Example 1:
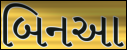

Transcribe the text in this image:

બિનઆ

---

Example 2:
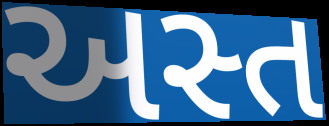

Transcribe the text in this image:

અસ્ત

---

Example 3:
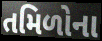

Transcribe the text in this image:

તમિળોના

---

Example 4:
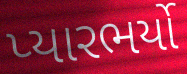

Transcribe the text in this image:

પ્યારભર્યો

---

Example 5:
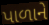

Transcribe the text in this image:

પાળાને